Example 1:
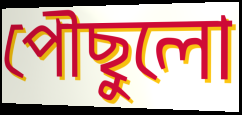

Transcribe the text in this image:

পৌছুলো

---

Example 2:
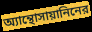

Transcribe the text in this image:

অ্যান্থোসায়ানিনের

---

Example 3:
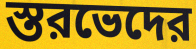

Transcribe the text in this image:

স্তরভেদের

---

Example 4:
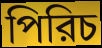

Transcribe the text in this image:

পিরিচ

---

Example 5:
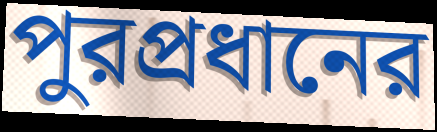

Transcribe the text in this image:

পুরপ্রধানের